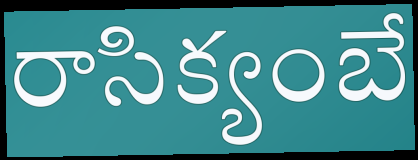
రాసిక్యంబే